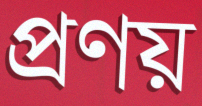
প্ৰণয়